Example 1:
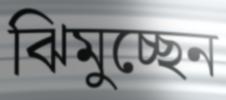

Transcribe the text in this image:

ঝিমুচ্ছেন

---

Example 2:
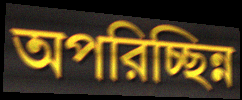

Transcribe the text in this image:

অপরিচ্ছিন্ন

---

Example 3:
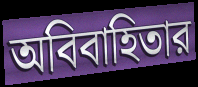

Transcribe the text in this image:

অবিবাহিতার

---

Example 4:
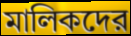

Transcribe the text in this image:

মালিকদের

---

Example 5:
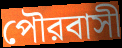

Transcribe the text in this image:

পৌরবাসী